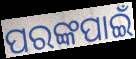
ପରଙ୍କପାଇଁ